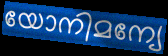
യോനിമന്യേ